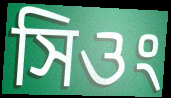
সিওং